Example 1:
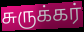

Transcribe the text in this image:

சுருக்கர்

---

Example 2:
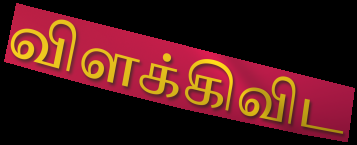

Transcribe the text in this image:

விளக்கிவிட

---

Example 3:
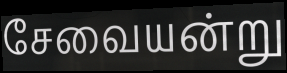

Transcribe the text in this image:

சேவையன்று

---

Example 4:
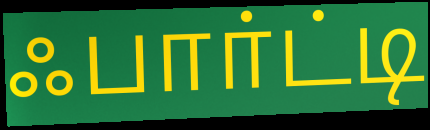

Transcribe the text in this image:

ஃபார்ட்டி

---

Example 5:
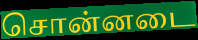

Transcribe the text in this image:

சொன்னடை